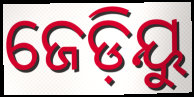
ଜେଡ଼ିୟୁ